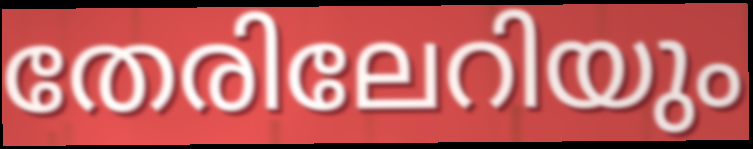
തേരിലേറിയും